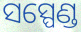
ସସ୍ପେଣ୍ଡ